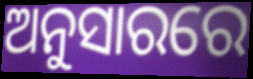
ଅନୁସାରରେ